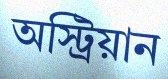
অস্ট্রিয়ান